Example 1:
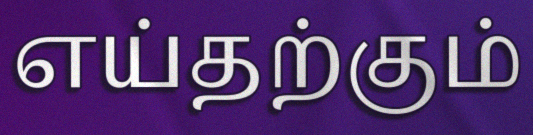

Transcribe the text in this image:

எய்தற்கும்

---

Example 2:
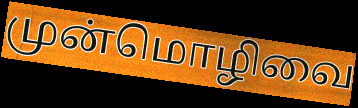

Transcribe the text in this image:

முன்மொழிவை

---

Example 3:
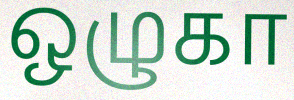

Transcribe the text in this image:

ஒழுகா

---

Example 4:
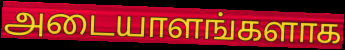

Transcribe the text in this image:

அடையாளங்களாக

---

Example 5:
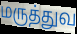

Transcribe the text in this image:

மருத்துவ